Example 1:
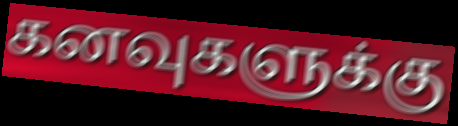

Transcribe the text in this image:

கனவுகளுக்கு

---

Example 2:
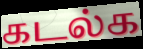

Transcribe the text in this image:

கடல்க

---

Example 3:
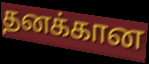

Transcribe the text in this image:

தனக்கான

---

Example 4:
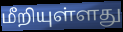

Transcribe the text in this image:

மீறியுள்ளது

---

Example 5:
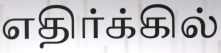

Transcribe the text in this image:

எதிர்க்கில்